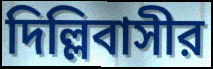
দিল্লিবাসীর